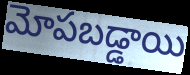
మోపబడ్డాయి